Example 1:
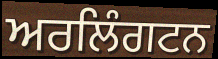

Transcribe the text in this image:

ਅਰਲਿੰਗਟਨ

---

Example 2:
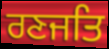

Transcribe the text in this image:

ਰਣਜਤਿ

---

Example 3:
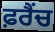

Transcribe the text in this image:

ਫ਼ਰੈਂਚ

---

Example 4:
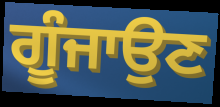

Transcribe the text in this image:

ਗੂੰਜਾਉਣ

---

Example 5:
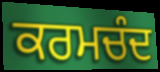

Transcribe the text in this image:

ਕਰਮਚੰਦ